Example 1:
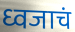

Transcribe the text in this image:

ध्वजाचं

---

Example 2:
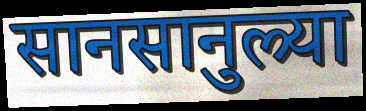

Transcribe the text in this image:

सानसानुल्या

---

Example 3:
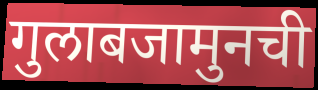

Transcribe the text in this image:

गुलाबजामुनची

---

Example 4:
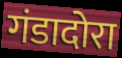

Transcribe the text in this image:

गंडादोरा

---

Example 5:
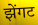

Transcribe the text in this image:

झेंगट